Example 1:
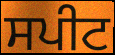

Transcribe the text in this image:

ਸਪੀਟ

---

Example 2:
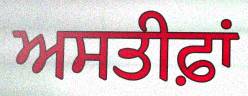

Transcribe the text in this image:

ਅਸਤੀਫ਼ਾਂ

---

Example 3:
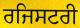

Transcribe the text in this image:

ਰਜਿਸਟਰੀ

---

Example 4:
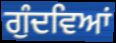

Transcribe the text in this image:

ਗੁੰਦਵਿਆਂ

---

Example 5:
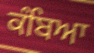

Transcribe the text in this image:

ਕੰਬਿਆ